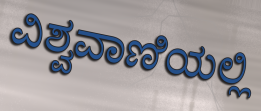
ವಿಶ್ವವಾಣಿಯಲ್ಲಿ